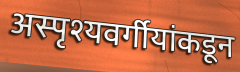
अस्पृश्यवर्गीयांकडून